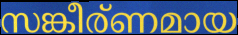
സങ്കീര്ണമായ